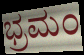
ಭ್ರಮಂ